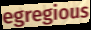
egregious